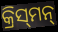
କ୍ରିସ୍‍ମନ୍